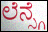
ಲೆನ್ಸ್ಗೆ